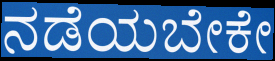
ನಡೆಯಬೇಕೇ